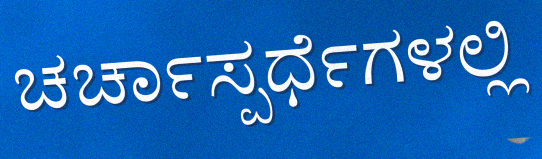
ಚರ್ಚಾಸ್ಪರ್ಧೆಗಳಲ್ಲಿ